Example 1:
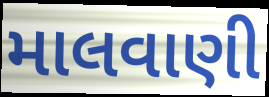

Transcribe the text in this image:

માલવાણી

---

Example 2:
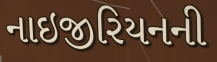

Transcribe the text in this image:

નાઇજીરિયનની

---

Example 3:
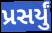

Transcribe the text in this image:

પ્રસર્યું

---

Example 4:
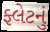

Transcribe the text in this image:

ફ્લેટનું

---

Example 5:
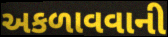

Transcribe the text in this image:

અકળાવવાની